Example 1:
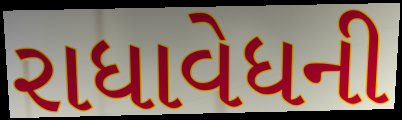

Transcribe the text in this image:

રાધાવેધની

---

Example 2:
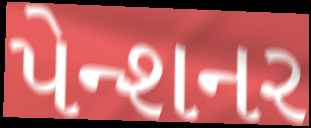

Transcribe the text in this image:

પેન્શનર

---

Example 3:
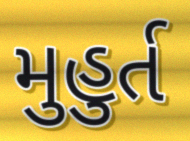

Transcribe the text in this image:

મુહુર્ત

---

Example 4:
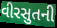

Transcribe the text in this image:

વીરસુતની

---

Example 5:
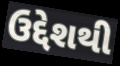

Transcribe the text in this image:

ઉદ્દેશથી